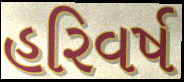
હરિવર્ષ